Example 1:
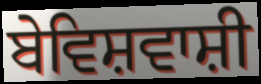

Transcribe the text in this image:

ਬੇਵਿਸ਼ਵਾਸ਼ੀ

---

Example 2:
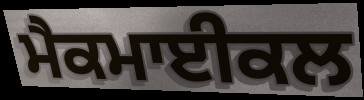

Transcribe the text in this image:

ਮੈਕਮਾਈਕਲ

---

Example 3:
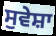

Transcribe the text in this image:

ਸੁਵੇਸ਼ਾ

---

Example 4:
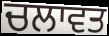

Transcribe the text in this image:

ਚਲਾਵਤ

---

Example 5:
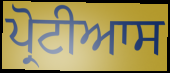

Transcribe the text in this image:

ਪ੍ਰੋਟੀਆਸ